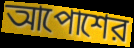
আপোশের